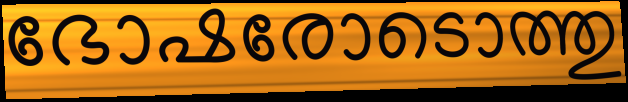
ഭോഷരോടൊത്തു